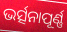
ଭର୍ତ୍ସନାପୂର୍ଣ୍ଣ